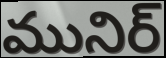
మునిర్